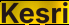
Kesri